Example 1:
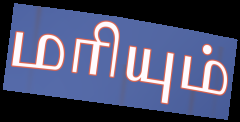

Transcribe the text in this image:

மரியும்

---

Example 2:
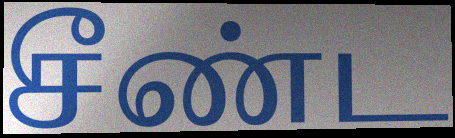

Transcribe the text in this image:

சீண்ட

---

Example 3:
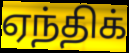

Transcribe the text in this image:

ஏந்திக்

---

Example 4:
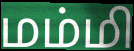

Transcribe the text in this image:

மம்மி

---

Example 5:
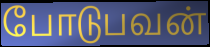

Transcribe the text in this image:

போடுபவன்